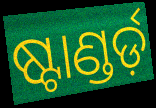
ଷ୍ଟାଣ୍ଡର୍ଡ଼